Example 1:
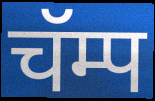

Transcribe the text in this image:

चॅम्प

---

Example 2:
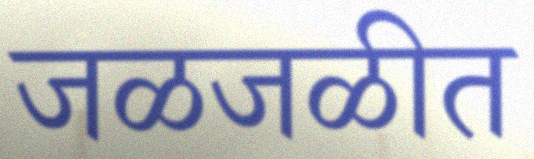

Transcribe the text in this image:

जळजळीत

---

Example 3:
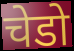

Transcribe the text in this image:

चेडो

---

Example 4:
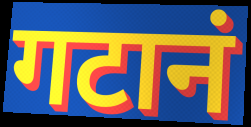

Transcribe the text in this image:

गटानं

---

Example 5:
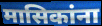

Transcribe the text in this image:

मासिकांना